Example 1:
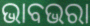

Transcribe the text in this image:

ଭାବଭରା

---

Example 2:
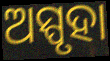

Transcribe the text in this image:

ଅସ୍ପୃହା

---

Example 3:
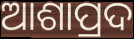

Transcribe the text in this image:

ଆଶାପ୍ରଦ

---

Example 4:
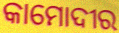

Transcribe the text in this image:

କାମୋଦୀର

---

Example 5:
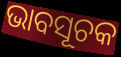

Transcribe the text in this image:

ଭାବସୂଚକ